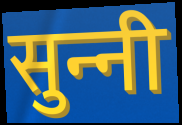
सुन्नी